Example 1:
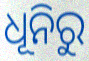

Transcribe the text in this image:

ଧୂନିରୁ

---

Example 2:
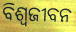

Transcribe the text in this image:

ବିଶ୍ଵଜୀବନ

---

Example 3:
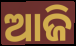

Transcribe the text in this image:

ଆଜି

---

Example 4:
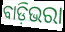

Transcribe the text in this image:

ବାଡ଼ିଭରା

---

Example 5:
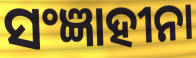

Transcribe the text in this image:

ସଂଜ୍ଞାହୀନା